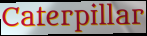
Caterpillar